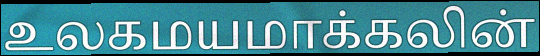
உலகமயமாக்கலின்